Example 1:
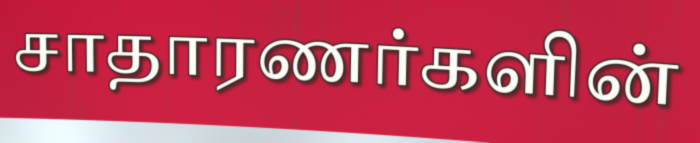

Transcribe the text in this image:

சாதாரணர்களின்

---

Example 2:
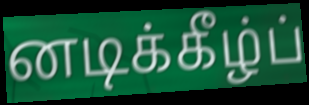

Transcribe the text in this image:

னடிக்கீழ்ப்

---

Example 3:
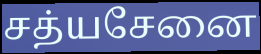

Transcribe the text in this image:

சத்யசேனை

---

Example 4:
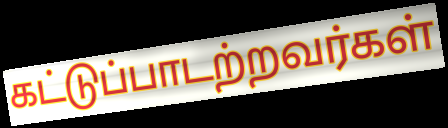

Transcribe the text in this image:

கட்டுப்பாடற்றவர்கள்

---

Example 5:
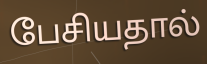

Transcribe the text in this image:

பேசியதால்